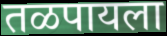
तळपायला